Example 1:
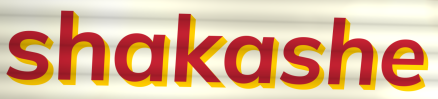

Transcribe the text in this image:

shakashe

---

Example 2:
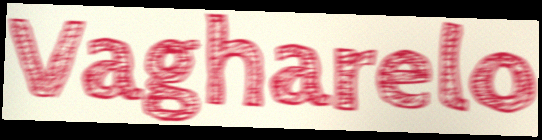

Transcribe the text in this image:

Vagharelo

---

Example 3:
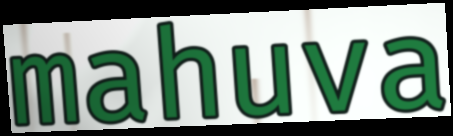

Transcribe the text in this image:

mahuva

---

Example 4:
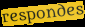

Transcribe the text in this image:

respondes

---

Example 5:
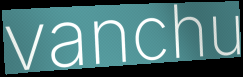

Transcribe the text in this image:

vanchu